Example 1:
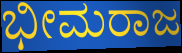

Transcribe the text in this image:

ಭೀಮರಾಜ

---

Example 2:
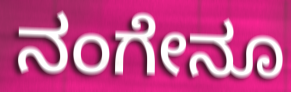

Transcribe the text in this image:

ನಂಗೇನೂ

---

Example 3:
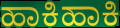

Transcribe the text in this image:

ಹಾಕಿಹಾಕಿ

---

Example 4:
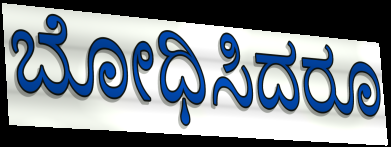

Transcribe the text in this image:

ಬೋಧಿಸಿದರೂ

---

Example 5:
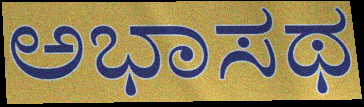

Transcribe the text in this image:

ಅಭಾಸಥ